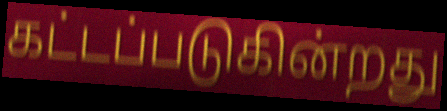
கட்டப்படுகின்றது